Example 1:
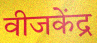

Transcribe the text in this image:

वीजकेंद्र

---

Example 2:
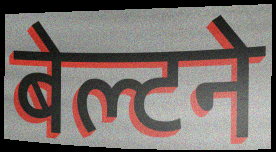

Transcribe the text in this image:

बेल्टने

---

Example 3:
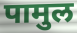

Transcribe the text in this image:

पामुल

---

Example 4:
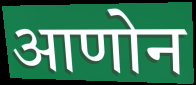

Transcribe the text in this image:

आणोन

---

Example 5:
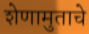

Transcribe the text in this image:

शेणामुताचे